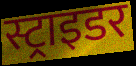
स्ट्राइडर